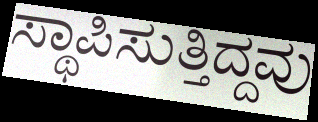
ಸ್ಥಾಪಿಸುತ್ತಿದ್ದವು